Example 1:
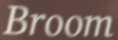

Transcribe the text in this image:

Broom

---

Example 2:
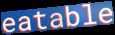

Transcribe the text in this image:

eatable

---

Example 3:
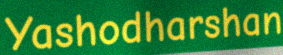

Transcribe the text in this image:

Yashodharshan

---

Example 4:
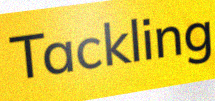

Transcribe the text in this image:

Tackling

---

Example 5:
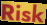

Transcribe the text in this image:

Risk